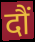
दौं